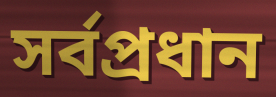
সৰ্বপ্ৰধান